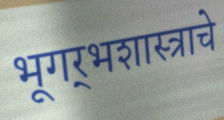
भूगर्भशास्त्राचे